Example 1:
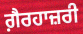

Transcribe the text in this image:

ਗ਼ੈਰਹਾਜ਼ਰੀ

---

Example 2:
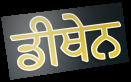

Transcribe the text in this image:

ਡੀਥੇਨ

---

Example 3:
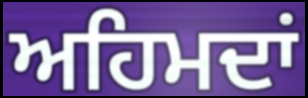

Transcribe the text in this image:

ਅਹਿਮਦਾਂ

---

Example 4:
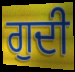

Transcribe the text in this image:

ਗੁਦੀ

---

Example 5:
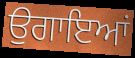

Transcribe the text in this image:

ਉਗਾਇਆਂ